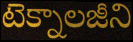
టెక్నాలజీని